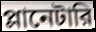
প্লানেটারি